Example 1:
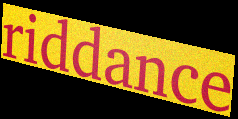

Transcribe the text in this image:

riddance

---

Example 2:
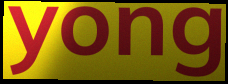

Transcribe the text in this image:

yong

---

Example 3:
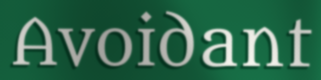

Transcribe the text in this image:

Avoidant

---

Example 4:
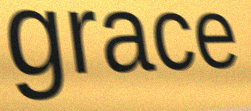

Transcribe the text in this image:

grace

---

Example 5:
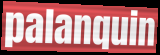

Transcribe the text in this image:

palanquin